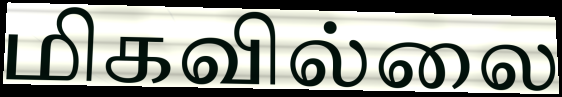
மிகவில்லை